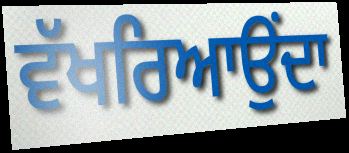
ਵੱਖਰਿਆਉਂਦਾ